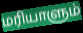
மரியாளும்